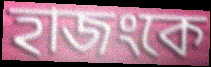
হাজংকে